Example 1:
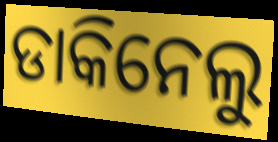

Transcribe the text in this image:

ଡାକିନେଲୁ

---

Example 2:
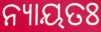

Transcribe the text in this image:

ନ୍ୟାୟତଃ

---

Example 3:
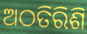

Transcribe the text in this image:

ଅଠତିରିଶି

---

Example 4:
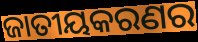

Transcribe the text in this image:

ଜାତୀୟକରଣର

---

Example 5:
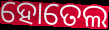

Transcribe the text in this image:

ହୋତେଲ